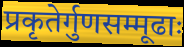
प्रकृतेर्गुणसम्मूढाः